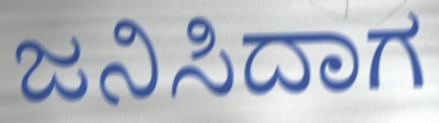
ಜನಿಸಿದಾಗ